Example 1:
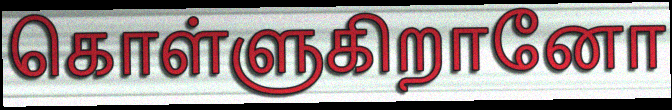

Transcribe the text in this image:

கொள்ளுகிறானோ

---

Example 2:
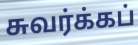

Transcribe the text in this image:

சுவர்க்கப்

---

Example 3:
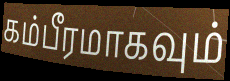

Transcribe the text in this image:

கம்பீரமாகவும்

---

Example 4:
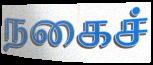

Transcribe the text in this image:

நகைச்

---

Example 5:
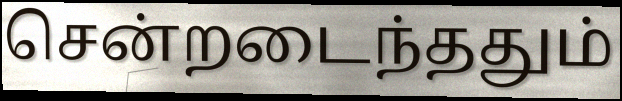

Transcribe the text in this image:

சென்றடைந்ததும்